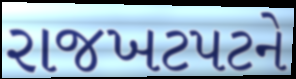
રાજખટપટને